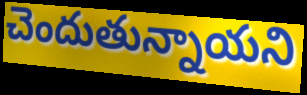
చెందుతున్నాయని